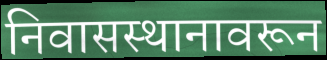
निवासस्थानावरून